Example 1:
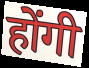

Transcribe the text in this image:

होंगी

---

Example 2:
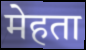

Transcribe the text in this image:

मेहता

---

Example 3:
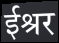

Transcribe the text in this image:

ईश्रर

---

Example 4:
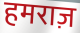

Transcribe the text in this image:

हमराज़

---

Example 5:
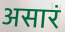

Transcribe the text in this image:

असारं